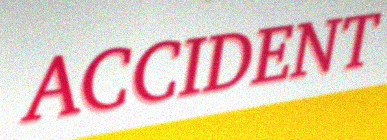
ACCIDENT